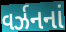
વર્ઝનનાં